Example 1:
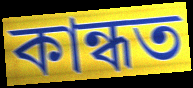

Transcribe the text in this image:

কান্ধত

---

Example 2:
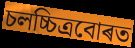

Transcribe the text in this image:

চলচ্চিত্ৰবোৰত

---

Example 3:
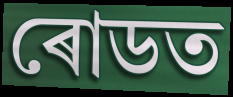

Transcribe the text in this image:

ৰোডত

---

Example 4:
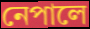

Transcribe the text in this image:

নেপালে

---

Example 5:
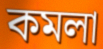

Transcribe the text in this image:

কমলা